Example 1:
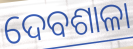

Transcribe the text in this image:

ଦେବଶାଳା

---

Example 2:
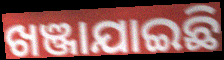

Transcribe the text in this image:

ଖଞ୍ଜାଯାଇଛି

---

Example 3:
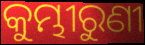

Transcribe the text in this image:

କୁମ୍ଭୀରୁଣୀ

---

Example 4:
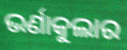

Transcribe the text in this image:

ଭର୍ଣାକୁଲାର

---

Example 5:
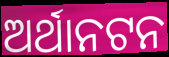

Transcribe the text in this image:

ଅର୍ଥାନଟନ